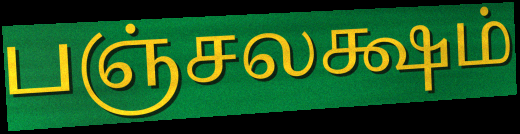
பஞ்சலக்ஷம்